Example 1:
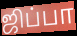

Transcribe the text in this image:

ஜிப்பா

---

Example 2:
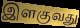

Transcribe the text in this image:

இளகுவது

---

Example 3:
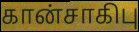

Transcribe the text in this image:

கான்சாகிபு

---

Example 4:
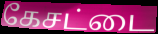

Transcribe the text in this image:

கேசட்டை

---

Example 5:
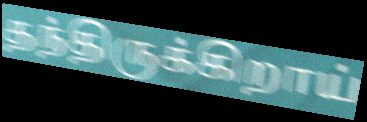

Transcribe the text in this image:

தந்திருக்கிறாய்